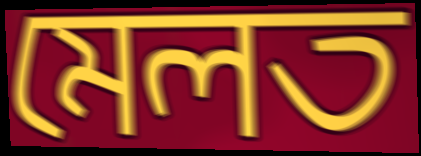
মেলত